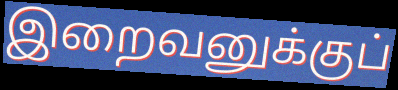
இறைவனுக்குப்